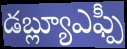
డబ్ల్యూఎఫ్పీ